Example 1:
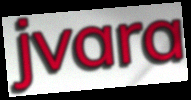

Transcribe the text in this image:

jvara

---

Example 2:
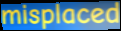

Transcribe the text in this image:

misplaced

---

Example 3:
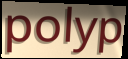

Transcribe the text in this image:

polyp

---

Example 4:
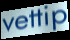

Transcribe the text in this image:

vettip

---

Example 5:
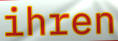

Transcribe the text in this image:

ihren